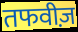
तफवीज़